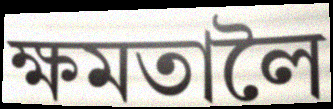
ক্ষমতালৈ